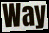
Way